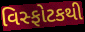
વિસ્ફોટકથી